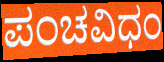
ಪಂಚವಿಧಂ